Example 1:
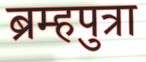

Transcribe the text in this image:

ब्रम्हपुत्रा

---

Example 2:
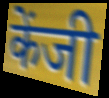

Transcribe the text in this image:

केंजी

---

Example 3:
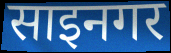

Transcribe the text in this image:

साइनगर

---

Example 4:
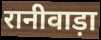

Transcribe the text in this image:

रानीवाड़ा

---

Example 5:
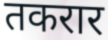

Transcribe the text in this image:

तकरार